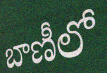
బాణీలో